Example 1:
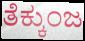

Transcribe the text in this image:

ತೆಕ್ಕುಂಜ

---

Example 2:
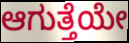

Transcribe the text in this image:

ಆಗುತ್ತೆಯೇ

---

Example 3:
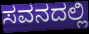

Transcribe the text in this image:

ಸವನದಲ್ಲಿ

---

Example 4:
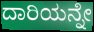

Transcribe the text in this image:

ದಾರಿಯನ್ನೇ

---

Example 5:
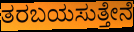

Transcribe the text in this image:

ತರಬಯಸುತ್ತೇನೆ